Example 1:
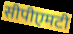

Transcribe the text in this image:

सीपीएमटी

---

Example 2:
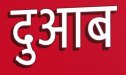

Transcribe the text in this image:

दुआब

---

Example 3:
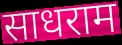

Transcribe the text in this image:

साधराम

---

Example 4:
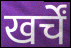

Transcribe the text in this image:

खर्चें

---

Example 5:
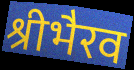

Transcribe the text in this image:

श्रीभैरव